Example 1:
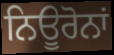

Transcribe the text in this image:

ਨਿਊਰੋਨਾਂ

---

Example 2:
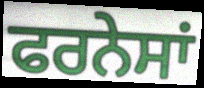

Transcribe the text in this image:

ਫਰਨੇਸਾਂ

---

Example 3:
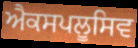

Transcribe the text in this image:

ਐਕਸਪਲੂਸਿਵ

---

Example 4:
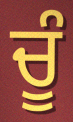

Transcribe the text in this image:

ਚੂੰ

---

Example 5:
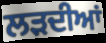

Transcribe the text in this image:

ਲੜਦੀਆਂ